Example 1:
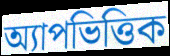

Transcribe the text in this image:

অ্যাপভিত্তিক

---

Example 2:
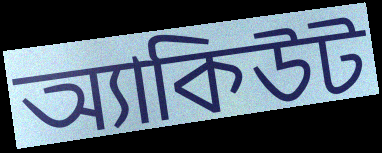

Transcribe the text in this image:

অ্যাকিউট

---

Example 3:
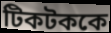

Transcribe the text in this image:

টিকটককে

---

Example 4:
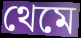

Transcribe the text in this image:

থেমে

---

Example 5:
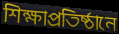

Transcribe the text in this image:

শিক্ষাপ্রতিষ্ঠানে